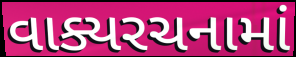
વાક્યરચનામાં